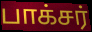
பாக்சர்